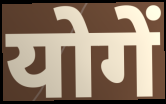
योगें